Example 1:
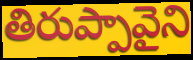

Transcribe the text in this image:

తిరుప్పావైని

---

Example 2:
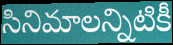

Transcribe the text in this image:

సినిమాలన్నిటికీ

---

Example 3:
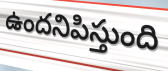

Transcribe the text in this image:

ఉందనిపిస్తుంది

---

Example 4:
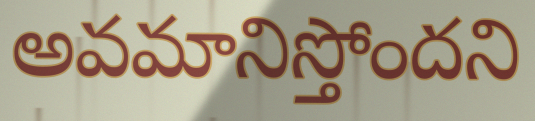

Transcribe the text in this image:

అవమానిస్తోందని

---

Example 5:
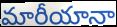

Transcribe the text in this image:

మారీయానా